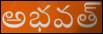
అభవత్